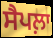
ਸੈਪਲ਼ਾ